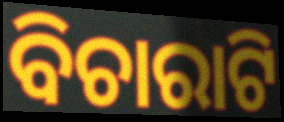
ବିଚାରାଟି